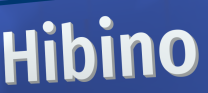
Hibino